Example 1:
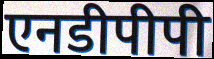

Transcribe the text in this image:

एनडीपीपी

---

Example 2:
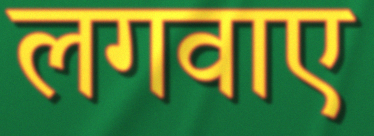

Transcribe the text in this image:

लगवाए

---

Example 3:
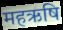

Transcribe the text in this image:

महऋषि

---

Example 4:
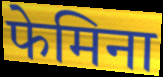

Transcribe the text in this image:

फेमिना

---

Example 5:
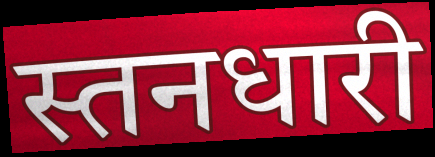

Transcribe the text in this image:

स्‍तनधारी